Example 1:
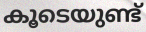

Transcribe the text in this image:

കൂടെയുണ്ട്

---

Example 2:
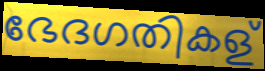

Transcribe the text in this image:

ഭേദഗതികള്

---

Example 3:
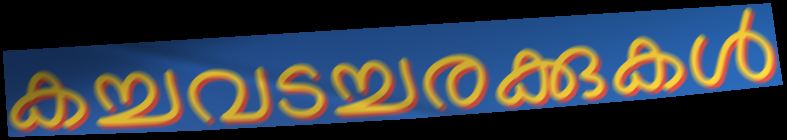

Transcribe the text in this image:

കച്ചവടച്ചരക്കുകൾ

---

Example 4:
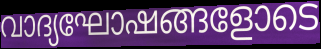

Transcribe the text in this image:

വാദ്യഘോഷങ്ങളോടെ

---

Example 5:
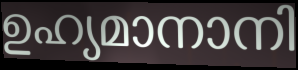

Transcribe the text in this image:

ഉഹ്യമാനാനി